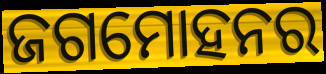
ଜଗମୋହନର